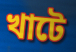
খাটে